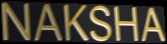
NAKSHA